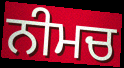
ਨੀਮਚ